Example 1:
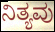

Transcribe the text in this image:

ನಿತ್ಯವು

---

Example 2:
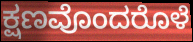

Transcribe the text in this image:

ಕ್ಷಣವೊಂದರೊಳೆ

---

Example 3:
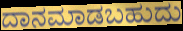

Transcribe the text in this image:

ದಾನಮಾಡಬಹುದು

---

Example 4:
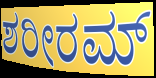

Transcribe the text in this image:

ಶರೀರಮ್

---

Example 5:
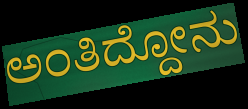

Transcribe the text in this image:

ಅಂತಿದ್ದೋನು